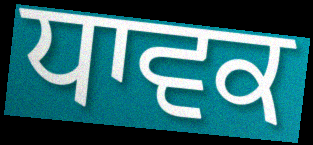
ਧਾਵਕ